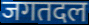
जगतदल